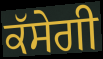
ਕੱਸੇਗੀ